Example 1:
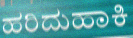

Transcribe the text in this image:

ಹರಿದುಹಾಕಿ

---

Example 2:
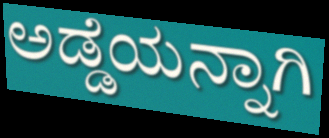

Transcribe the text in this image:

ಅಡ್ಡೆಯನ್ನಾಗಿ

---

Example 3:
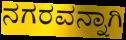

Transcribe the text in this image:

ನಗರವನ್ನಾಗಿ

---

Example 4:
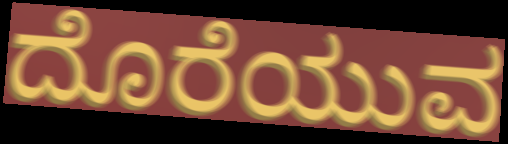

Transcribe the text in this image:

ದೊರೆಯುವ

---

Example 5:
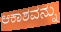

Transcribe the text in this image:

ಆಕಾಶವನ್ನು